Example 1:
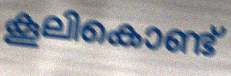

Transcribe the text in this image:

കൂലികൊണ്ട്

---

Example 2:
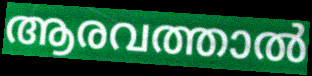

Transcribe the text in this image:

ആരവത്താൽ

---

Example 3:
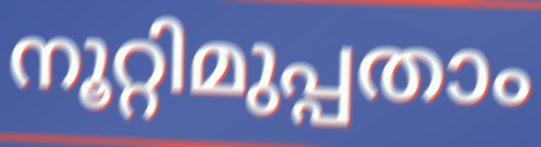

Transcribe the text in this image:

നൂറ്റിമുപ്പതാം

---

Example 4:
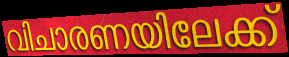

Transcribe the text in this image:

വിചാരണയിലേക്ക്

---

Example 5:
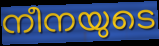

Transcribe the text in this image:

നീനയുടെ